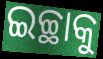
ଇଚ୍ଛାକୁ